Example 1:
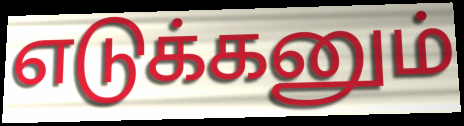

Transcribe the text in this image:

எடுக்கனும்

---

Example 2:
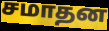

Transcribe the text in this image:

சமாதன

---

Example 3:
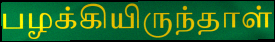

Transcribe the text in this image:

பழக்கியிருந்தாள்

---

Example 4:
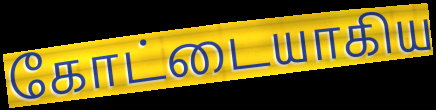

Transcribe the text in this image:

கோட்டையாகிய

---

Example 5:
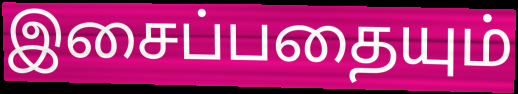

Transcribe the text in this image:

இசைப்பதையும்